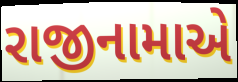
રાજીનામાએ